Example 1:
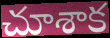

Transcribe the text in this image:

చూశాక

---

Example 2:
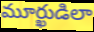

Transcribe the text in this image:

మూర్ఖుడిలా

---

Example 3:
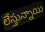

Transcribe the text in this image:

లేస్తున్నాయి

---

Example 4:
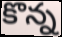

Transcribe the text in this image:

కొన్న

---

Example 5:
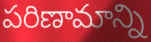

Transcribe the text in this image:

పరిణామాన్ని